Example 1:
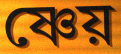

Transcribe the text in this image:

ষ্ণেয়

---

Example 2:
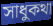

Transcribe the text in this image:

সাধুকথা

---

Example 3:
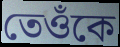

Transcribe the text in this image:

তেওঁকে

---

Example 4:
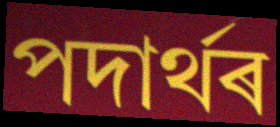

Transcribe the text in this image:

পদাৰ্থৰ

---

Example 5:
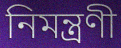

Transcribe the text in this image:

নিমন্ত্ৰণী